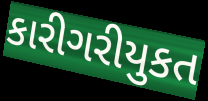
કારીગરીયુકત